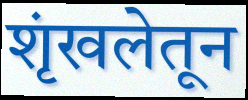
शृंखलेतून